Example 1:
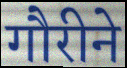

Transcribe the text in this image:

गौरीने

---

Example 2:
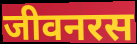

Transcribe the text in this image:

जीवनरस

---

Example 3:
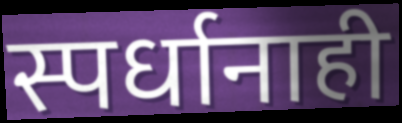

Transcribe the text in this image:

स्पर्धानाही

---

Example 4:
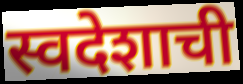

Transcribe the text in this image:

स्वदेशाची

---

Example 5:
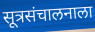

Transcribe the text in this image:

सूत्रसंचालनाला